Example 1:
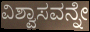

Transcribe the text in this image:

ವಿಶ್ವಾಸವನ್ನೇ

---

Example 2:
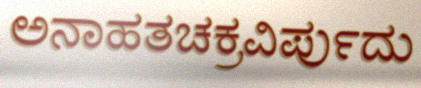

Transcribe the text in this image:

ಅನಾಹತಚಕ್ರವಿರ್ಪುದು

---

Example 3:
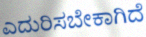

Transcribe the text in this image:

ಎದುರಿಸಬೇಕಾಗಿದೆ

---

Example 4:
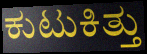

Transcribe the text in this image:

ಕುಟುಕಿತ್ತು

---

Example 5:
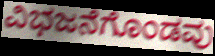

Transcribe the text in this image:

ವಿಭಜನೆಗೊಂಡವು